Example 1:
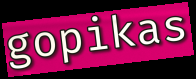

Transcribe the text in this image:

gopikas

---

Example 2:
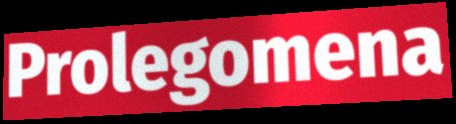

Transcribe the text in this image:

Prolegomena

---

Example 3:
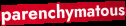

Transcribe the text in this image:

parenchymatous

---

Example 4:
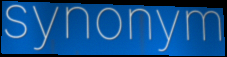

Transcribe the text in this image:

synonym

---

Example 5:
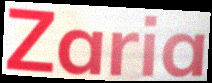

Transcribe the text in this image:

Zaria